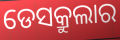
ଡେସକ୍ରୁଲାର